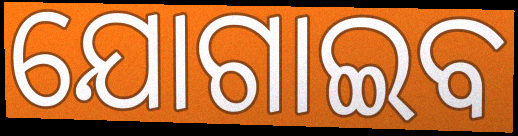
ଯୋଗାଇବ